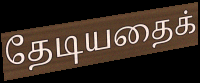
தேடியதைக்